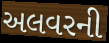
અલવરની